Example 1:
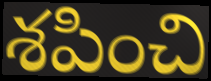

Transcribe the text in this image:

శపించి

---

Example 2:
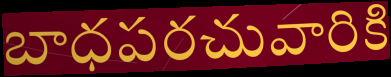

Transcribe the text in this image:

బాధపరచువారికి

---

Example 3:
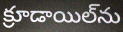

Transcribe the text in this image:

క్రూడాయిల్‌ను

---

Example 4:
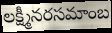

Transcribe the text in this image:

లక్ష్మీనరసమాంబ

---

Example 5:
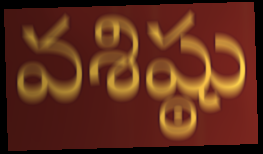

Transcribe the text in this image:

వశిష్ఠు